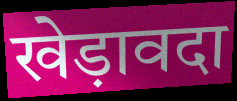
खेड़ावदा